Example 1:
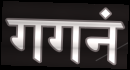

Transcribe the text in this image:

गगनं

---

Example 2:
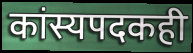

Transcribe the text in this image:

कांस्यपदकही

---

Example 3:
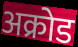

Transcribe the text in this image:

अक्रोड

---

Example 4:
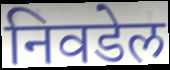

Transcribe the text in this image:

निवडेल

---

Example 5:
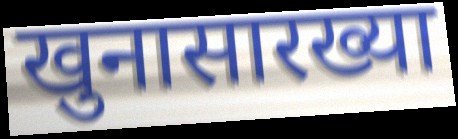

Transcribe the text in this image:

खुनासारख्या